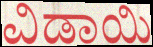
ವಿಡಾಯಿ